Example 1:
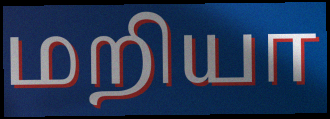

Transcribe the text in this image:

மறியா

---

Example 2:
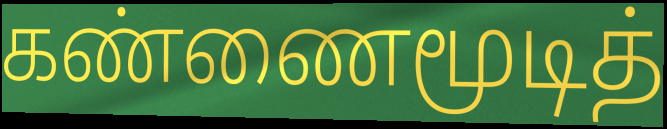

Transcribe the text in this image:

கண்ணைமூடித்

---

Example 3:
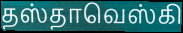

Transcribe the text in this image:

தஸ்தாவெஸ்கி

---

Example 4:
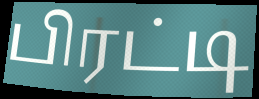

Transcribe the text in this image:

பிரட்டி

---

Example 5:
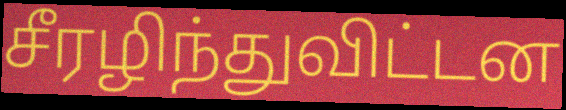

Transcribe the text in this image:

சீரழிந்துவிட்டன